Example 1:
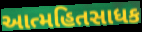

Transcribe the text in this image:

આત્મહિતસાધક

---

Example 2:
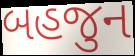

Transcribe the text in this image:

બહજુન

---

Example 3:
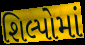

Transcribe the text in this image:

શિલ્પોમાં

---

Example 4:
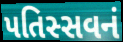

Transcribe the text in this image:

પતિસ્સવનં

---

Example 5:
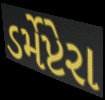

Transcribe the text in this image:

ડર્મેપ્ટેરા